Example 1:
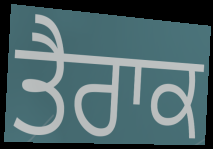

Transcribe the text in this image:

ਤੈਰਾਕ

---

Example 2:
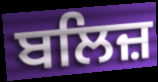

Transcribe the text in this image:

ਬਲਿਜ਼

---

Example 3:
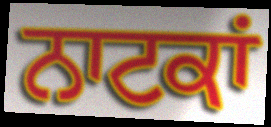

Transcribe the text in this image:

ਨਾਟਕਾਂ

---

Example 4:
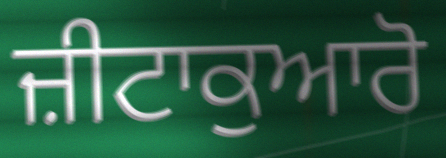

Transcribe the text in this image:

ਜ਼ੀਟਾਕੁਆਰੋ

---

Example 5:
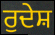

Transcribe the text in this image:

ਰੁਦੇਸ਼